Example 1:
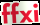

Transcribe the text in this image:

ffxi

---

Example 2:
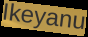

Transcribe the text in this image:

Ikeyanu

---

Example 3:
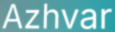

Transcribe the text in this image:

Azhvar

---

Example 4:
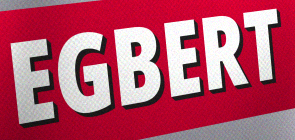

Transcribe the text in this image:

EGBERT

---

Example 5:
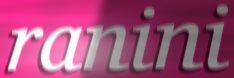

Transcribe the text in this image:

ranini